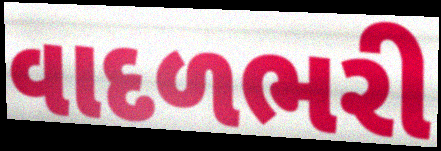
વાદળભરી